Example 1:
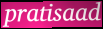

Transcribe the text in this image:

pratisaad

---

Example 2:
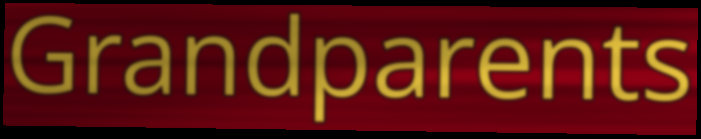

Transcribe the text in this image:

Grandparents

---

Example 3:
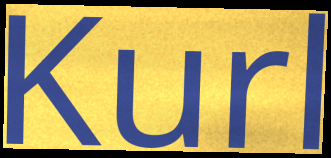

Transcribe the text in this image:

Kurl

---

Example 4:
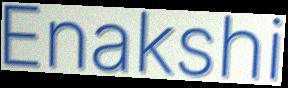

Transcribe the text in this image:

Enakshi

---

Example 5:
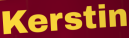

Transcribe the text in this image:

Kerstin